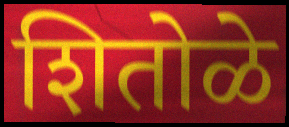
शितोळे